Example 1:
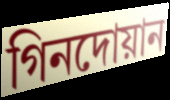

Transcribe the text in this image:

গিনদোয়ান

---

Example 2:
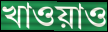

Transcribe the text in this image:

খাওয়াও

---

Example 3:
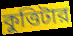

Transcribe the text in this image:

কুত্তিটার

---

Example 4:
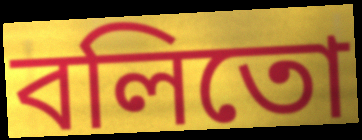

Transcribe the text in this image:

বলিতো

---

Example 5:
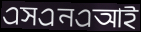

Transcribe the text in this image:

এসএনএআই